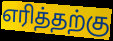
எரித்தற்கு